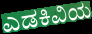
ಎಡಕಿವಿಯ